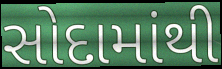
સોદામાંથી